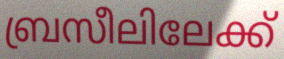
ബ്രസീലിലേക്ക്